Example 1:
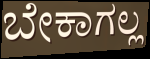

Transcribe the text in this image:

ಬೇಕಾಗಲ್ಲ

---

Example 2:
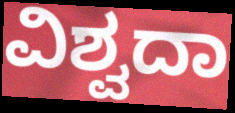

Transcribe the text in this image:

ವಿಶ್ವದಾ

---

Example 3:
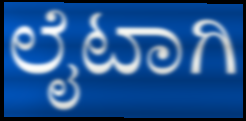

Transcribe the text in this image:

ಲೈಟಾಗಿ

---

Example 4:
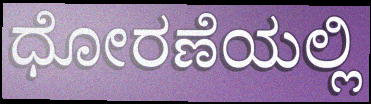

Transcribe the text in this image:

ಧೋರಣೆಯಲ್ಲಿ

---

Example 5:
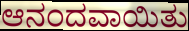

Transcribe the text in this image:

ಆನಂದವಾಯಿತು